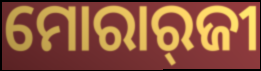
ମୋରାର୍‍ଜୀ